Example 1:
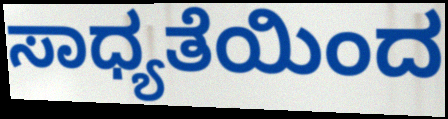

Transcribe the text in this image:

ಸಾಧ್ಯತೆಯಿಂದ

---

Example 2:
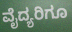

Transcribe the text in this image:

ವೈದ್ಯರಿಗೂ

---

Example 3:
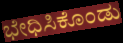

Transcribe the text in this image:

ಭೇಧಿಸಿಕೊಂಡು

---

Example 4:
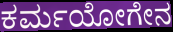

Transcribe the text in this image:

ಕರ್ಮಯೋಗೇನ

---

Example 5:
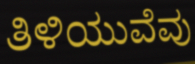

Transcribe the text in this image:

ತಿಳಿಯುವೆವು